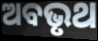
ଅବଭୃଥ